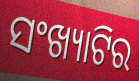
ସଂଖ୍ୟାଟିର